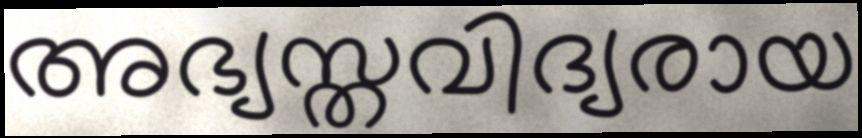
അഭ്യസ്തവിദ്യരായ